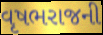
વૃષભરાજની